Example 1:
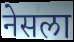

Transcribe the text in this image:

नेसला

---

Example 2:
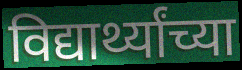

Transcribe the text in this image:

विद्यार्थ्यांच्या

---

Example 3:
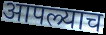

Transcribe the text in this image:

आपल्याच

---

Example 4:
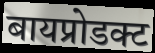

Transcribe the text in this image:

बायप्रोडक्ट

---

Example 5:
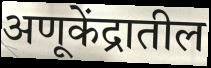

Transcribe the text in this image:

अणूकेंद्रातील